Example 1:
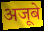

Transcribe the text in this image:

अजूबे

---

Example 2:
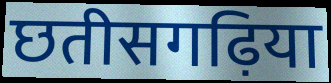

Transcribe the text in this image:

छतीसगढ़िया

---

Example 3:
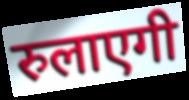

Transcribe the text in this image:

रुलाएगी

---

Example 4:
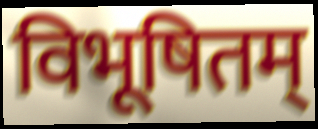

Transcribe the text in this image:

विभूषितम्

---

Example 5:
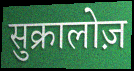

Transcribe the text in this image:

सुक्रालोज़